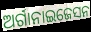
ଅର୍ଗାନାଇଜେସନ